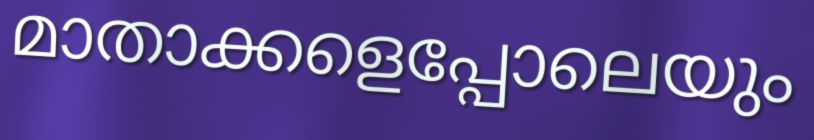
മാതാക്കളെപ്പോലെയും